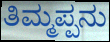
ತಿಮ್ಮಪ್ಪನು